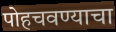
पोहचवण्याचा